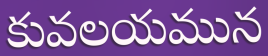
కువలయమున